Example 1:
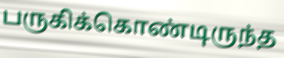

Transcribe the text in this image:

பருகிக்கொண்டிருந்த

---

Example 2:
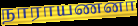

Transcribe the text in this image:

நாராயணனா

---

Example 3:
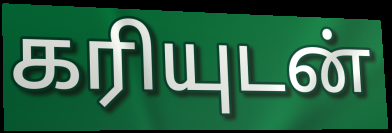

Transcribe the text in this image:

கரியுடன்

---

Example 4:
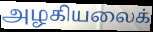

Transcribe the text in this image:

அழகியலைக்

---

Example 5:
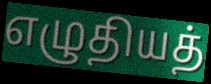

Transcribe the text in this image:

எழுதியத்